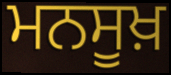
ਮਨਸੂਖ਼